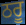
ਠਰੂ